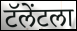
टॅलेंटला